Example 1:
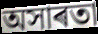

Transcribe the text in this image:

অসাৰতা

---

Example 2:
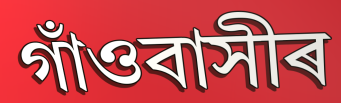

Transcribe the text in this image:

গাঁওবাসীৰ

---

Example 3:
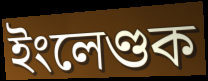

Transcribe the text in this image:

ইংলেণ্ডক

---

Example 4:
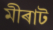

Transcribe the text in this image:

মীৰাট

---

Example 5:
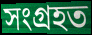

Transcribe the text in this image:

সংগ্ৰহত